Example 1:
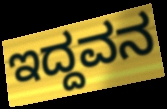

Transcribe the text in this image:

ಇದ್ದವನ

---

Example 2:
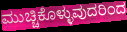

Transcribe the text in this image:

ಮುಚ್ಚಿಕೊಳ್ಳುವುದರಿಂದ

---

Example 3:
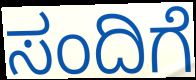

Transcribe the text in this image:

ಸಂದಿಗೆ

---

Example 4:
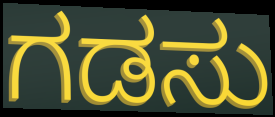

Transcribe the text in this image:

ಗಡಸು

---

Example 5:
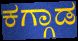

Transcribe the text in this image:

ಕಗ್ಗಾಡ